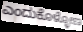
ಎಂದುಕೊಳ್ಳೋಣ